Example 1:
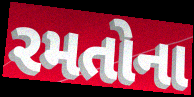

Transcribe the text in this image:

રમતોના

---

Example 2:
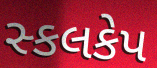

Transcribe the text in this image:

સ્કલકેપ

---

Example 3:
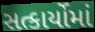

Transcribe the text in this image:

સત્કાર્યોમાં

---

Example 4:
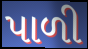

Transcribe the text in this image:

પાળી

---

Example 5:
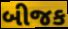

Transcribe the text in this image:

બીજક